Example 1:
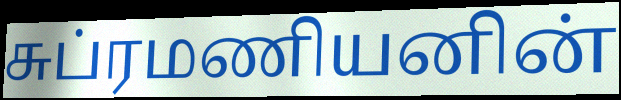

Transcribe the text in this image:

சுப்ரமணியனின்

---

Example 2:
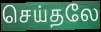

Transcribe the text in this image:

செய்தலே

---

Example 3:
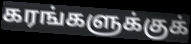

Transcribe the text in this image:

கரங்களுக்குக்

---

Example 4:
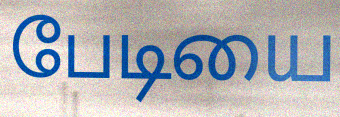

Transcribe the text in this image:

பேடியை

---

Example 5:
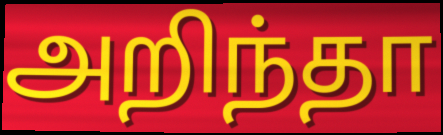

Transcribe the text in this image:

அறிந்தா